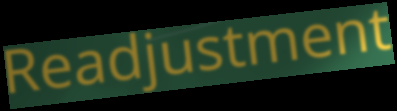
Readjustment